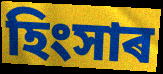
হিংসাৰ